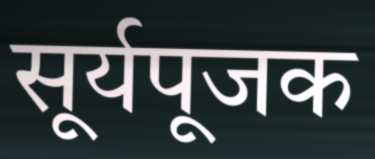
सूर्यपूजक